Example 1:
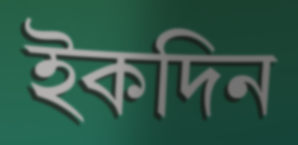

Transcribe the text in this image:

ইকদিন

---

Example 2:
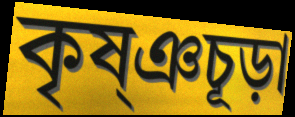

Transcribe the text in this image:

কৃষ্ঞচূড়া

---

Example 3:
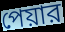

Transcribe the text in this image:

পেয়ার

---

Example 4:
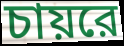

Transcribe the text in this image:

চায়রে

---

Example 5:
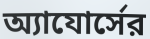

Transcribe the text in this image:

অ্যাযোর্সের